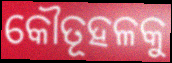
କୌତୂହଳକୁ